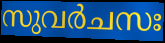
സുവർചസഃ